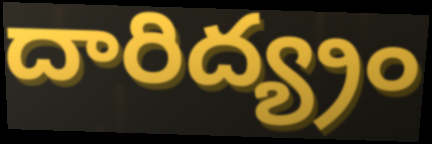
దారిద్య్రం